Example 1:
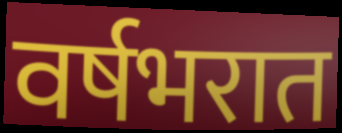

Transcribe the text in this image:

वर्षभरात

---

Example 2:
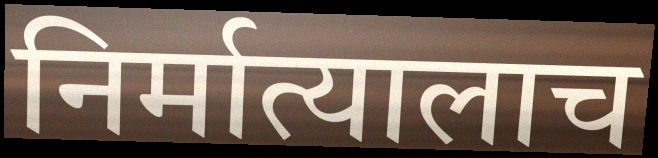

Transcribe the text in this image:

निर्मात्यालाच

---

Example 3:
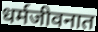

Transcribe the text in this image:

धर्मजीवनात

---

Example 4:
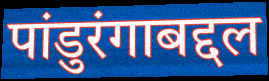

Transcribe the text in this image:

पांडुरंगाबद्दल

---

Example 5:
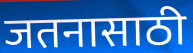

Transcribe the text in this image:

जतनासाठी